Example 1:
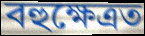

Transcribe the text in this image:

বহুক্ষেত্ৰত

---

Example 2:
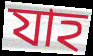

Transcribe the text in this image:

যাহ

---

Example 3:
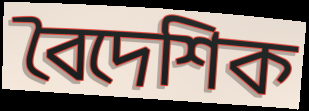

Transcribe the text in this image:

বৈদেশিক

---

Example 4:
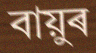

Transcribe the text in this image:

বায়ুৰ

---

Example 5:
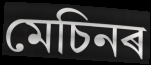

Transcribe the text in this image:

মেচিনৰ